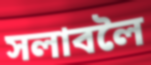
সলাবলৈ